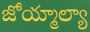
జోయ్మాల్యా